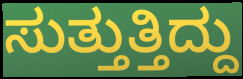
ಸುತ್ತುತ್ತಿದ್ದು